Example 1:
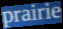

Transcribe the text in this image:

prairie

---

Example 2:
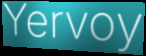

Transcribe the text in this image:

Yervoy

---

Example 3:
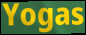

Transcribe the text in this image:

Yogas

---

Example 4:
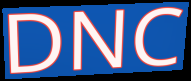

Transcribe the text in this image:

DNC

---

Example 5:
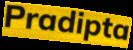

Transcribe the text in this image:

Pradipta